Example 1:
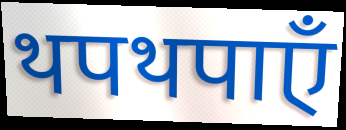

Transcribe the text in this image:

थपथपाएँ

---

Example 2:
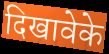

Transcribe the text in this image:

दिखावेके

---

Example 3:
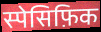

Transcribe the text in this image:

स्पेसिफ़िक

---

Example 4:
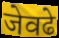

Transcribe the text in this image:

जेवढे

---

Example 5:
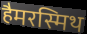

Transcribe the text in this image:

हैमरस्मिथ